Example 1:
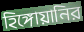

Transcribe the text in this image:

হিঙ্গোয়ানির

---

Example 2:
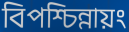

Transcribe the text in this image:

বিপশ্চিন্নায়ং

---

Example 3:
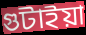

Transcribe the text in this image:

গুটাইয়া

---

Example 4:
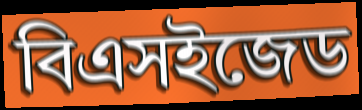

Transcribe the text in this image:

বিএসইজেড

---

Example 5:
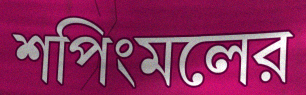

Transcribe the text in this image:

শপিংমলের